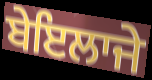
ਬੇਇਲਾਜੇ